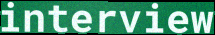
interview